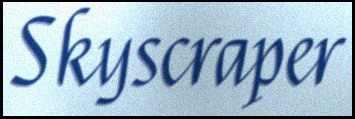
Skyscraper